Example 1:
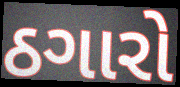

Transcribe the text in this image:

ઠગારો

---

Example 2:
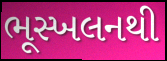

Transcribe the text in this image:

ભૂસ્ખલનથી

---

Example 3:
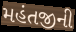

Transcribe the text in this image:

મહંતજીની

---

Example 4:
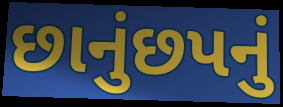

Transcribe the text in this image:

છાનુંછપનું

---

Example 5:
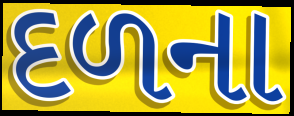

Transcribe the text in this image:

દળના